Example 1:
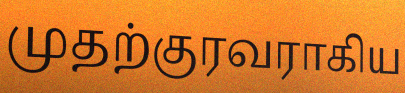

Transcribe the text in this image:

முதற்குரவராகிய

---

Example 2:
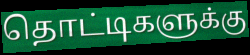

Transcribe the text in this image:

தொட்டிகளுக்கு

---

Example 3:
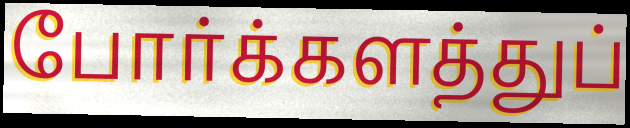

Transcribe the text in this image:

போர்க்களத்துப்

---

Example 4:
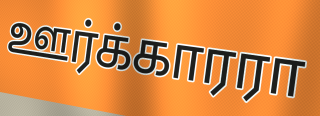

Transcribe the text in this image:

ஊர்க்காரரா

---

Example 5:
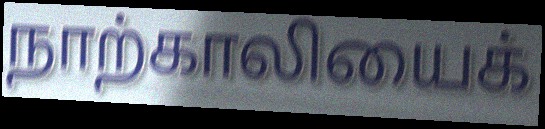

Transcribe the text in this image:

நாற்காலியைக்